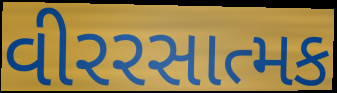
વીરરસાત્મક